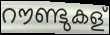
റൗണ്ടുകള്